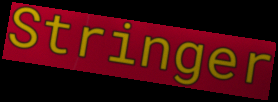
Stringer